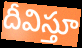
దీవిస్తూ